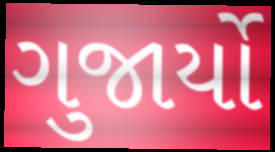
ગુજાર્યો